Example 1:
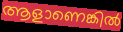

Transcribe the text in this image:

ആളാണെങ്കിൽ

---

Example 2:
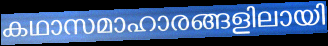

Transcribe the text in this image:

കഥാസമാഹാരങ്ങളിലായി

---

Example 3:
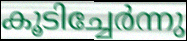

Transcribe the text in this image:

കൂടിച്ചേർന്നു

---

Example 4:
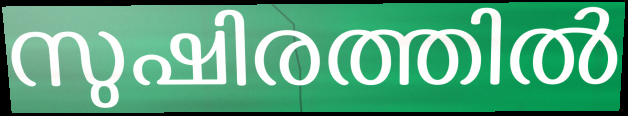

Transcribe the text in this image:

സുഷിരത്തിൽ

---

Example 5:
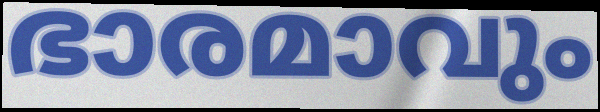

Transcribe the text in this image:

ഭാരമാവും